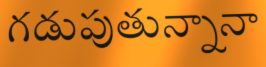
గడుపుతున్నానా